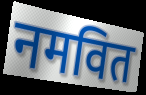
नमवित